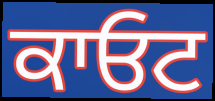
ਕਾਓਟ